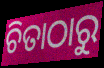
ଚିତାଠାରୁ